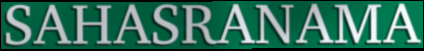
SAHASRANAMA